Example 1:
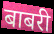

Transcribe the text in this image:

बाबरी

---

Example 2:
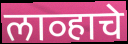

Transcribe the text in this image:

लाव्हाचे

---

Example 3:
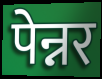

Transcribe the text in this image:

पेन्नर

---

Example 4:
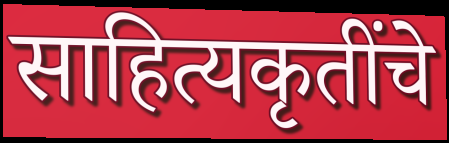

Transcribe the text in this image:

साहित्यकृतींचे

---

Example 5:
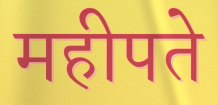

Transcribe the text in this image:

महीपते